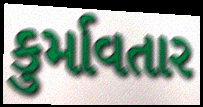
કુર્માવતાર